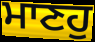
ਮਾਣਹੁ